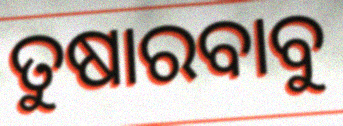
ତୁଷାରବାବୁ